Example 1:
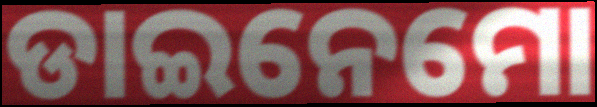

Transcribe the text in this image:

ଡାଇନେମୋ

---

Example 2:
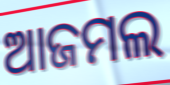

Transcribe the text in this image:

ଆଜମଲ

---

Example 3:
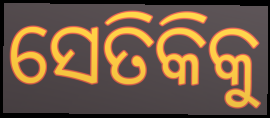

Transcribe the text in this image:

ସେତିକିକୁ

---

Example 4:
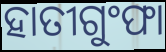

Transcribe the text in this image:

ହାତୀଗୁଂଫା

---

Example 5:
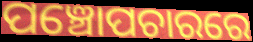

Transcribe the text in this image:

ପଞ୍ଚୋପଚାରରେ